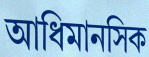
আধিমানসিক